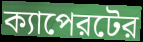
ক্যাপেরটের